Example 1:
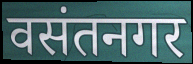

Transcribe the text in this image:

वसंतनगर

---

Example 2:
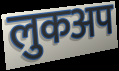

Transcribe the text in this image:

लुकअप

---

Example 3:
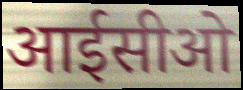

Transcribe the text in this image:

आईसीओ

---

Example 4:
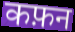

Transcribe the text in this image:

कफ़न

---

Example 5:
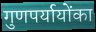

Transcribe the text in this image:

गुणपर्यायोंका